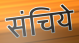
संचिये